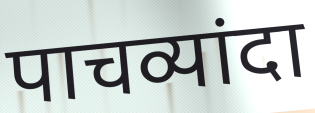
पाचव्यांदा